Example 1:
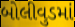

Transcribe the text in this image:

બોલીવુડમાં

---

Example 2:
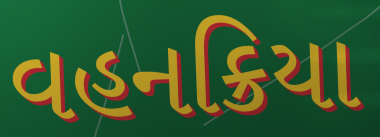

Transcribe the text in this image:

વહનક્રિયા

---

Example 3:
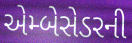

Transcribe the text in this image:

એમ્બેસેડરની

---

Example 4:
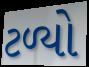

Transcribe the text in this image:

ટળ્યો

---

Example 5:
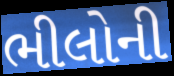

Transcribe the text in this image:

ભીલોની